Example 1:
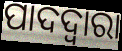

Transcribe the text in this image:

ପାଦଦ୍ଵାରା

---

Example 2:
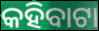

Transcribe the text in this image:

କହିବାଟା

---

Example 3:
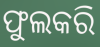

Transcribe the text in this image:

ଫୁଲକରି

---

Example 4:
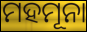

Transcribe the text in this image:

ମହମୂନା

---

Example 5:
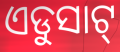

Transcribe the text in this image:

ଏଡୁସାଟ୍